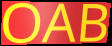
OAB